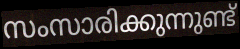
സംസാരിക്കുന്നുണ്ട്